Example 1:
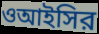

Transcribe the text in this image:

ওআইসির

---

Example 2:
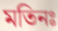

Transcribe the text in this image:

মতিনঃ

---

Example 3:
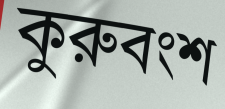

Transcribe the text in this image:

কুরুবংশ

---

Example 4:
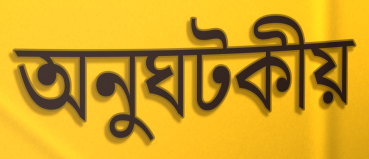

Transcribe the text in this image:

অনুঘটকীয়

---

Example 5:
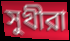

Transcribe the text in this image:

সুখীরা